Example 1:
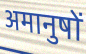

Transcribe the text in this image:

अमानुषों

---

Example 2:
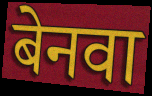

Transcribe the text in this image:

बेनवा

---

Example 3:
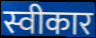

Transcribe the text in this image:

स्‍वीकार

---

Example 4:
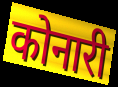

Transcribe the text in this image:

कोनारी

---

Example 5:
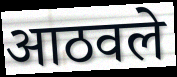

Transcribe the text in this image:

आठवले